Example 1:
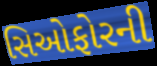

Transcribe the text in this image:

સિઓફોરની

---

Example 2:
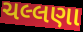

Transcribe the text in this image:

ચલ્લણા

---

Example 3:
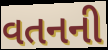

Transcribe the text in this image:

વતનની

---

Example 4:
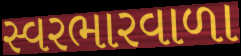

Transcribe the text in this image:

સ્વરભારવાળા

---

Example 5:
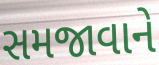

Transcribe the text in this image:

સમજાવાને